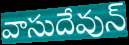
వాసుదేవున్